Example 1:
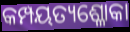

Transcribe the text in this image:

କମ୍ପୟତ୍ୟଶ୍ଳୋକା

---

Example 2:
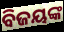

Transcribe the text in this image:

ବିଜୟଙ୍କ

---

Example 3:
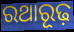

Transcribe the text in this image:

ରଥାରୂଢ଼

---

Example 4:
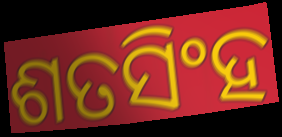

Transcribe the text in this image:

ଶତସିଂହ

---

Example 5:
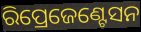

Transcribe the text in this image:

ରିପ୍ରେଜେଣ୍ଟେସନ